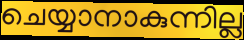
ചെയ്യാനാകുന്നില്ല